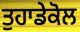
ਤੁਹਾਡੇਕੋਲ